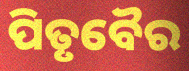
ପିତୃବୈର